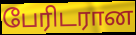
பேரிடரான